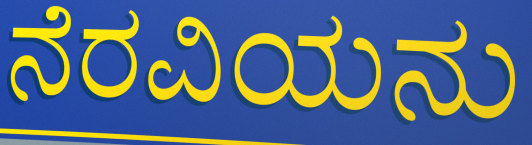
ನೆರವಿಯನು